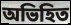
অভিহিত